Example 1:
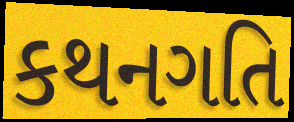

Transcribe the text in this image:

કથનગતિ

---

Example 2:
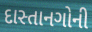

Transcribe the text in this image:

દાસ્તાનગોની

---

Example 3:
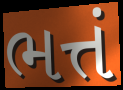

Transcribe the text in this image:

ભત્તં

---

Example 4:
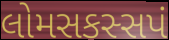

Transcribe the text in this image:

લોમસકસ્સપં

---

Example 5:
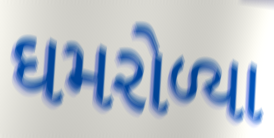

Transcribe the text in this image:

ઘમરોળ્યા